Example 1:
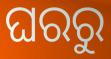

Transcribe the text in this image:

ଘରରୁ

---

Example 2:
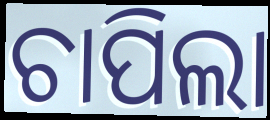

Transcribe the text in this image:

ଚାପିଲା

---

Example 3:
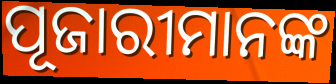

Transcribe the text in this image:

ପୂଜାରୀମାନଙ୍କ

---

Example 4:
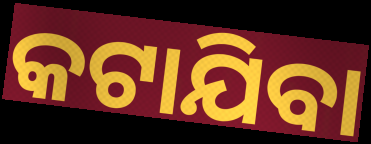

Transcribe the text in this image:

କଟାଯିବା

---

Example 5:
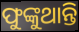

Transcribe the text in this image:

ଫୁଙ୍କୁଥାନ୍ତି